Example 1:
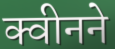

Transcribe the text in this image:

क्वीनने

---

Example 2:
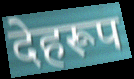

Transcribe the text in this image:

देहरूप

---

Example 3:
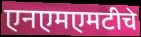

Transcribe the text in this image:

एनएमएमटीचे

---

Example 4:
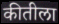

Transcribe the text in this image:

कीतीला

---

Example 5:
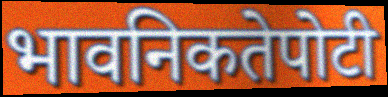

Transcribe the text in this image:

भावनिकतेपोटी